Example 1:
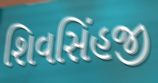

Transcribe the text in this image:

શિવસિંહજી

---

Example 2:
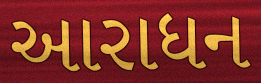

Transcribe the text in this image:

આરાધન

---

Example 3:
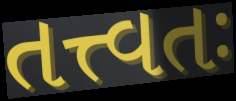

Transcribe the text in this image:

તત્ત્વતઃ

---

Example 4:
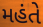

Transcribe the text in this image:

મહંતે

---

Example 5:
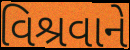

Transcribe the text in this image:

વિશ્રવાને